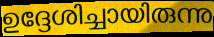
ഉദ്ദേശിച്ചായിരുന്നു